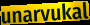
unarvukal